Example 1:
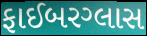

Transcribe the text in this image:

ફાઈબરગ્લાસ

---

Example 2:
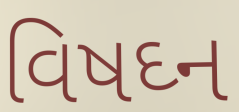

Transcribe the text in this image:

વિષઘ્ન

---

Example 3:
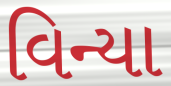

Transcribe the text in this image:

વિન્યા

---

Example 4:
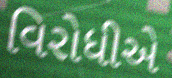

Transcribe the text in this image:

વિરોધીએ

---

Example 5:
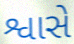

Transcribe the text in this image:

શ્વાસે